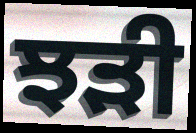
ਝੜੀ